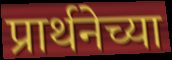
प्रार्थनेच्या